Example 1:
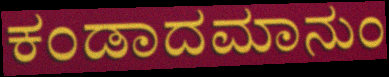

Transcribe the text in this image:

ಕಂಡಾದಮಾನುಂ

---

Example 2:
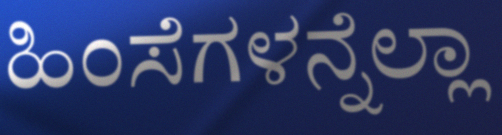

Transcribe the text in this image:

ಹಿಂಸೆಗಳನ್ನೆಲ್ಲಾ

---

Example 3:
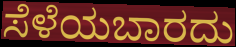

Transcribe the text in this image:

ಸೆಳೆಯಬಾರದು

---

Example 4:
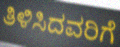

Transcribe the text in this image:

ತಿಳಿಸಿದವರಿಗೆ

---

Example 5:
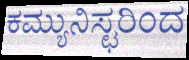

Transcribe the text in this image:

ಕಮ್ಯುನಿಸ್ಟರಿಂದ